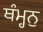
ਥੰਮ੍ਹ੍ਹਨੁ